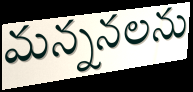
మన్ననలను